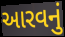
આરવનું